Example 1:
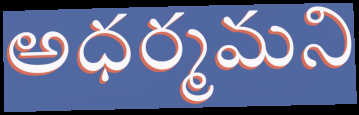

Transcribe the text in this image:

అధర్మమని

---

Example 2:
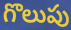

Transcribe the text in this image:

గొలుపు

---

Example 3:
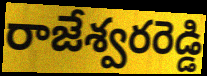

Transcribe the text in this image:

రాజేశ్వరరెడ్డి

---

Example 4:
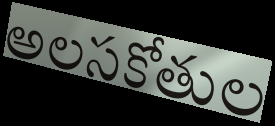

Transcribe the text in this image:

అలసకోతుల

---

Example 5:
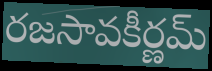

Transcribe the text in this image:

రజసావకీర్ణమ్